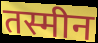
तस्मीन